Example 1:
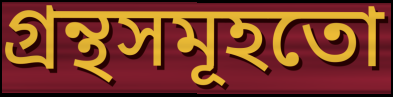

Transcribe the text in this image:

গ্ৰন্থসমূহতো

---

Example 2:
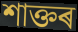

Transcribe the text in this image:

শাক্তৰ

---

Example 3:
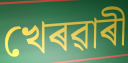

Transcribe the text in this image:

খেৰৱাৰী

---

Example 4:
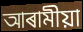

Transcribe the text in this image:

আৰামীয়া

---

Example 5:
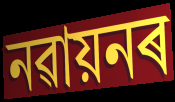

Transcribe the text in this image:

নৱায়নৰ